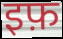
इफ़